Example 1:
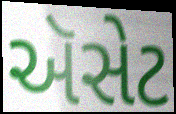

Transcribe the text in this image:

ઍસેટ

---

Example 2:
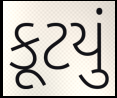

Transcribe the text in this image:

કૂટયું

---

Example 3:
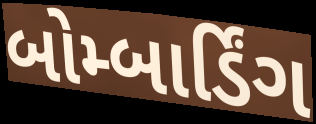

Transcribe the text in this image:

બોમ્બાર્ડિંગ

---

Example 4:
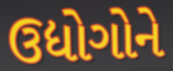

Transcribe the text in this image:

ઉદ્યોગોને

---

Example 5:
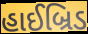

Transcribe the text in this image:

હાઈબ્રિડ